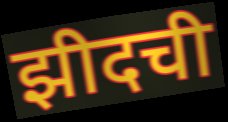
झीदची